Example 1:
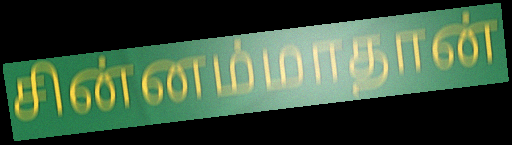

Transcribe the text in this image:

சின்னம்மாதான்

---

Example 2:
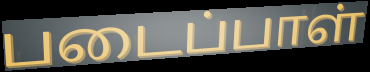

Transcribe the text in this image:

படைப்பாள்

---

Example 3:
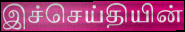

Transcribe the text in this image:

இச்செய்தியின்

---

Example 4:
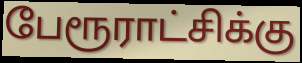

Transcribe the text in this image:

பேரூராட்சிக்கு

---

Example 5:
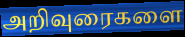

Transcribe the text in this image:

அறிவுரைகளை